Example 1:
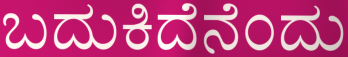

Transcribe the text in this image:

ಬದುಕಿದೆನೆಂದು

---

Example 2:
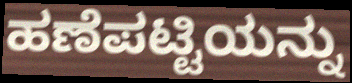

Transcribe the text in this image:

ಹಣೆಪಟ್ಟಿಯನ್ನು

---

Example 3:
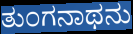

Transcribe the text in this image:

ತುಂಗನಾಥನು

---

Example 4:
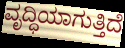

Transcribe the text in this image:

ವೃದ್ಧಿಯಾಗುತ್ತಿದೆ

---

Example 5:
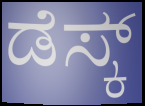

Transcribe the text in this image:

ಡೆಸ್ಕ್